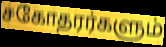
சகோதரர்களும்